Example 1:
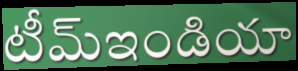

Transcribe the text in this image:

టీమ్ఇండియా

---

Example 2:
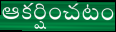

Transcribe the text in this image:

ఆకర్షించటం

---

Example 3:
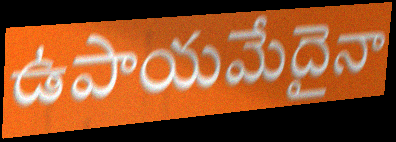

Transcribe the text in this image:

ఉపాయమేదైనా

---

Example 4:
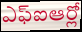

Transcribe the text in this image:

ఎఫ్ఐఆర్లో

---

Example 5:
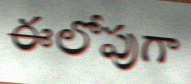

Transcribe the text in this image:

ఈలోపుగా